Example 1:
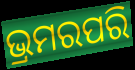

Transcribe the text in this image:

ଭ୍ରମରପରି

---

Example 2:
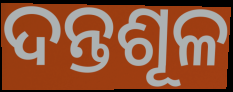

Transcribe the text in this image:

ଦନ୍ତଶୂଳ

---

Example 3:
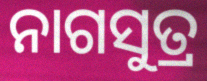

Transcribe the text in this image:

ନାଗସୁତ୍ର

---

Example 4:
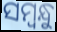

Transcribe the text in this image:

ସମ୍ବନ୍ଧୁ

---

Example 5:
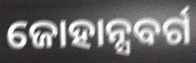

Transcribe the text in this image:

ଜୋହାନ୍ସବର୍ଗ